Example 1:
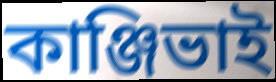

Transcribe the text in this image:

কাঞ্জিভাই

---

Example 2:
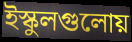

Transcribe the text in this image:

ইস্কুলগুলোয়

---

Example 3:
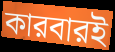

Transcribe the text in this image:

কারবারই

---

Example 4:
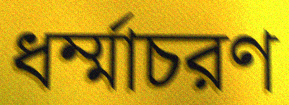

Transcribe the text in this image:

ধর্ম্মাচরণ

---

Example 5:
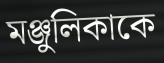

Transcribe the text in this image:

মঞ্জুলিকাকে